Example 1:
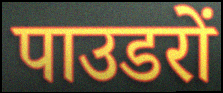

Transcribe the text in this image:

पाउडरों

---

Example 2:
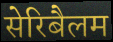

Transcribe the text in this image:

सेरिबैलम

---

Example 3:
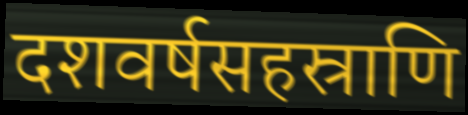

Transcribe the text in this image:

दशवर्षसहस्राणि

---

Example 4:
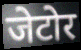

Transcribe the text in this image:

जेटोर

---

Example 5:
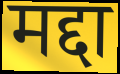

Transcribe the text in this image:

मद्दा